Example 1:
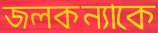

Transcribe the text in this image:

জলকন্যাকে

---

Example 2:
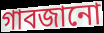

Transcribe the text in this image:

গাবজানো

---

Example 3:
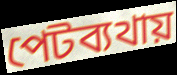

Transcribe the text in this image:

পেটব্যথায়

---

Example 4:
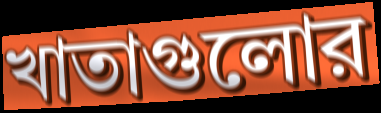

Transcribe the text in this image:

খাতাগুলোর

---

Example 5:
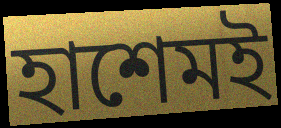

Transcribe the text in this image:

হাশেমই